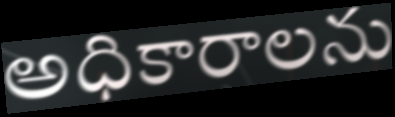
అధికారాలను